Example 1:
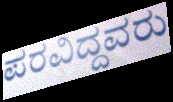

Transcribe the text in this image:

ಪರವಿದ್ದವರು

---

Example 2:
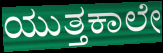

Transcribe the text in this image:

ಯುತ್ತಕಾಲೇ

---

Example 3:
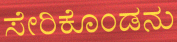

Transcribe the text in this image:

ಸೇರಿಕೊಂಡನು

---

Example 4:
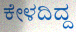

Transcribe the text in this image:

ಕೇಳದಿದ್ದ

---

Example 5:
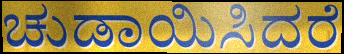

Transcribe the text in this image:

ಚುಡಾಯಿಸಿದರೆ